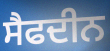
ਸੈਫਦੀਨ